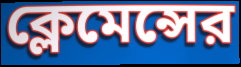
ক্লেমেন্সের